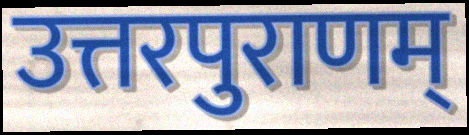
उत्तरपुराणम्